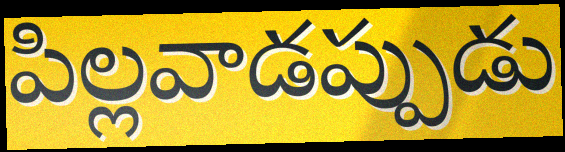
పిల్లవాడప్పుడు